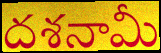
దశనామీ